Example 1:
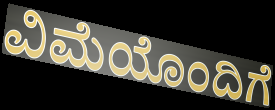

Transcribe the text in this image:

ವಿಮೆಯೊಂದಿಗೆ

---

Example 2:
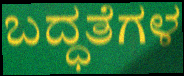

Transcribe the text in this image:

ಬದ್ಧತೆಗಳ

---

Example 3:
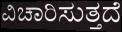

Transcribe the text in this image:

ವಿಚಾರಿಸುತ್ತದೆ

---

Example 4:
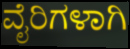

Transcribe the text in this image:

ವೈರಿಗಳಾಗಿ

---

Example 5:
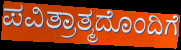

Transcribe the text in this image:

ಪವಿತ್ರಾತ್ಮದೊಂದಿಗೆ